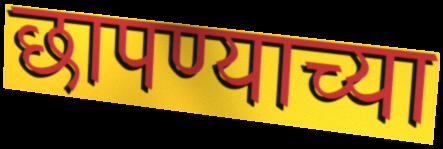
छापण्याच्या